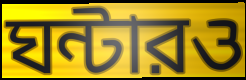
ঘন্টারও